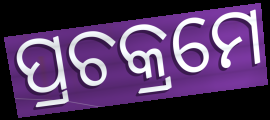
ପ୍ରଚକ୍ରମେ